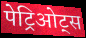
पेट्रिओट्स